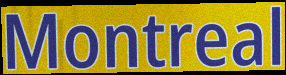
Montreal